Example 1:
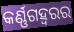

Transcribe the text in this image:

କର୍ଣ୍ଣଗହ୍ୱରର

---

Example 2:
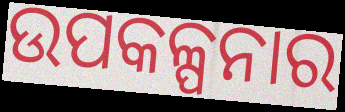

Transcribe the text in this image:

ଉପକଳ୍ପନାର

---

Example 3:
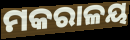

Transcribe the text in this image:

ମକରାଳୟ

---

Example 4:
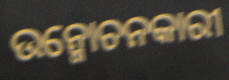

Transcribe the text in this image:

ଉନ୍ମୋଚନକାରୀ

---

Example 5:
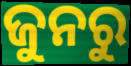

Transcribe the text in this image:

ଜୁନରୁ